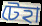
টেহা